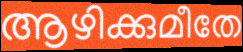
ആഴിക്കുമീതേ